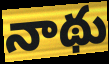
నాథు